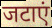
जटाएं